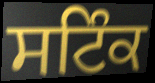
ਸਟਿੰਕ